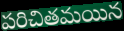
పరిచితమయిన